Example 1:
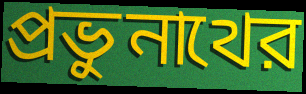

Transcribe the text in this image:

প্রভুনাথের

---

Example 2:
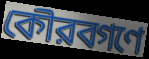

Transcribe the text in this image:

কৌরবগণে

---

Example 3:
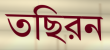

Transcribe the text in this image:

তছিরন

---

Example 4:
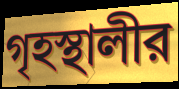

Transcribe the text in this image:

গৃহস্থালীর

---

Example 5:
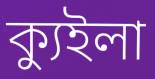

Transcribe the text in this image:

ক্যুইলা